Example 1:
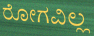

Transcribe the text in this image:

ರೋಗವಿಲ್ಲ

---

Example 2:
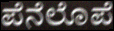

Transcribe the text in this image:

ಪೆನೆಲೊಪೆ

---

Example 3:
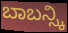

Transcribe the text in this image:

ಬಾಬನ್ಸ್ಕಿ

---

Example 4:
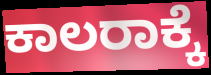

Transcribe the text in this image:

ಕಾಲರಾಕ್ಕೆ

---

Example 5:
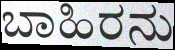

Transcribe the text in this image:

ಬಾಹಿರನು